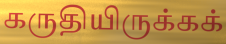
கருதியிருக்கக்